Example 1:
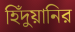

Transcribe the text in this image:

হিঁদুয়ানির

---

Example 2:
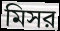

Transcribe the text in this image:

মিসর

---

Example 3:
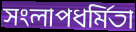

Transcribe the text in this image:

সংলাপধর্মিতা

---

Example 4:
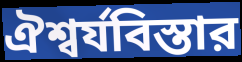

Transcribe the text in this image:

ঐশ্বর্যবিস্তার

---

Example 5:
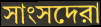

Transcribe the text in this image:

সাংসদেরা